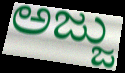
ಅಜ್ಜು